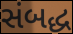
સંબદ્ધ